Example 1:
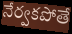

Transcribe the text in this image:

నేర్వకపోతే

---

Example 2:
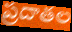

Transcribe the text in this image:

ప్రదాతల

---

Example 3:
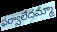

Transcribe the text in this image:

ఫర్వాలేదమ్మా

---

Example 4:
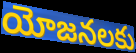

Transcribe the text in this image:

యోజనలకు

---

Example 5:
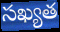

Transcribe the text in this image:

సఖ్యత